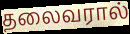
தலைவரால்